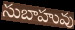
సుబాహువు